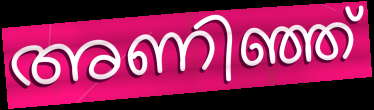
അണിഞ്ഞ്